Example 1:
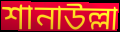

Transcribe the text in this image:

শানাউল্লা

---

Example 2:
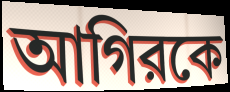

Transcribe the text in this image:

আগিরকে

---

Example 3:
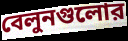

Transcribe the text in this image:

বেলুনগুলোর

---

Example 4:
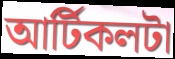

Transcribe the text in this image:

আর্টিকলটা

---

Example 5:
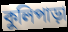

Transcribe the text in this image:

কুলিপাড়া